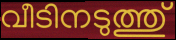
വീടിനടുത്തു്